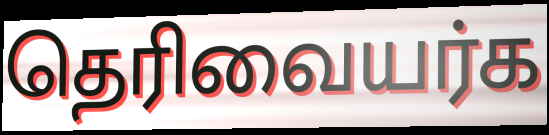
தெரிவையர்க